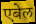
एबेल